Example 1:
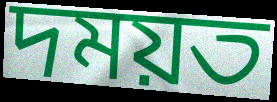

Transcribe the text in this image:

দময়ত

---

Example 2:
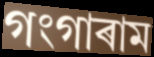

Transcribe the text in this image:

গংগাৰাম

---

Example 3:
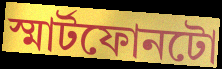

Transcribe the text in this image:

স্মাৰ্টফোনটো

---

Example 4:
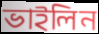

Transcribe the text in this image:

ভাইলিন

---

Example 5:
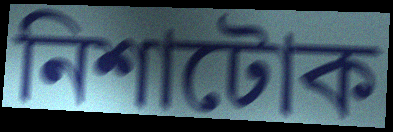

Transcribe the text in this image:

নিশাটোক